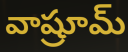
వాష్రూమ్